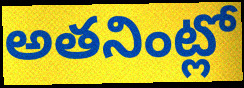
అతనింట్లో